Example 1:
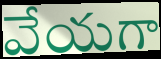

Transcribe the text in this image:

వేయగా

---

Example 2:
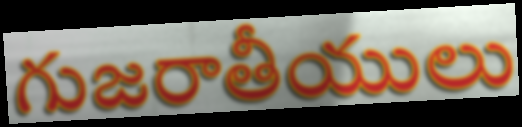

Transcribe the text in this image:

గుజరాతీయులు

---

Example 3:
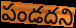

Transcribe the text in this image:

పండదని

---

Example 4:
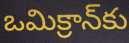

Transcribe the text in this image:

ఒమిక్రాన్‌కు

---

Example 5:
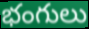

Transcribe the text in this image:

భంగులు